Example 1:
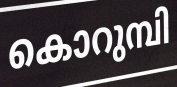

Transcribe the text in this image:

കൊറുമ്പി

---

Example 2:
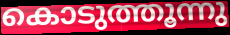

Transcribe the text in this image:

കൊടുത്തൂന്നു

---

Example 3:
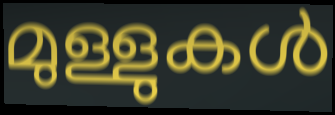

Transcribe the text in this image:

മുള്ളുകൾ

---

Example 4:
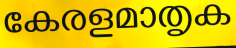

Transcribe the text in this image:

കേരളമാതൃക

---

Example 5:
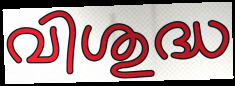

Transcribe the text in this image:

വിശുദ്ധ